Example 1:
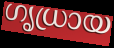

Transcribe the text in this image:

ഗൃധ്രായ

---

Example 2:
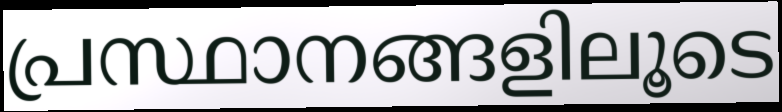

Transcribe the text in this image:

പ്രസ്ഥാനങ്ങളിലൂടെ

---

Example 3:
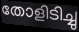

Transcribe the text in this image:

തോളിടിച്ചു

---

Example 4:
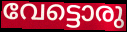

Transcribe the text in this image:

വേട്ടൊരു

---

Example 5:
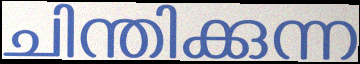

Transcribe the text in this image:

ചിന്തിക്കുന്ന